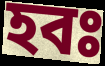
হবঃ